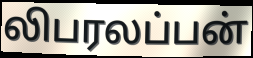
லிபரலப்பன்